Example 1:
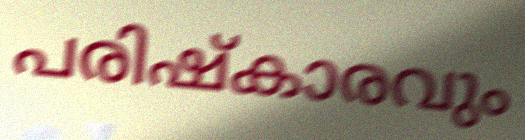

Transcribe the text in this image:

പരിഷ്കാരവും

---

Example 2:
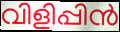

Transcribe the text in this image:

വിളിപ്പിൻ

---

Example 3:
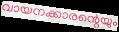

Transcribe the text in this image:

വായനക്കാരന്റെയും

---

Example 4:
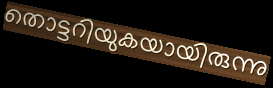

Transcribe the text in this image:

തൊട്ടറിയുകയായിരുന്നു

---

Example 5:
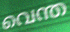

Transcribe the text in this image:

വെന്ത